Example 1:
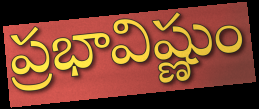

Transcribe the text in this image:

ప్రభావిష్ణుం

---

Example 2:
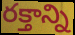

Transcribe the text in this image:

రక్తాన్ని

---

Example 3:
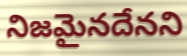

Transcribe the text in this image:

నిజమైనదేనని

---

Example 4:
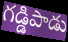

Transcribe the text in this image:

గడ్డిపాడు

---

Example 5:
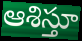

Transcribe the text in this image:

ఆశిస్తూ